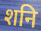
शनि